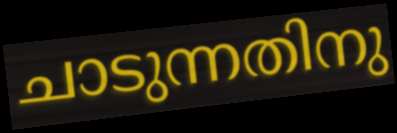
ചാടുന്നതിനു